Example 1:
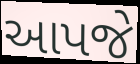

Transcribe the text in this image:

આપજે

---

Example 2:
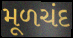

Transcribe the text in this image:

મૂળચંદ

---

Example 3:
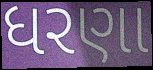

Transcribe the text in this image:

ધરણા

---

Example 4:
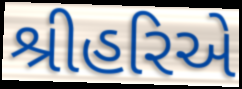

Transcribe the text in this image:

શ્રીહરિએ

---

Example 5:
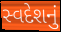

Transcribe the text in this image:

સ્વદેશનું